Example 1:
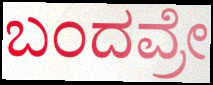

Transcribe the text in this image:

ಬಂದವ್ರೇ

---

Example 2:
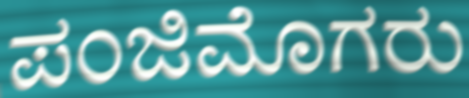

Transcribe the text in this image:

ಪಂಜಿಮೊಗರು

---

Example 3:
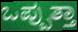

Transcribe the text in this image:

ಒಪ್ಪುತ್ತಾ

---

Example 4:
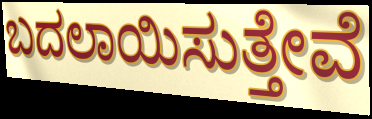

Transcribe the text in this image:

ಬದಲಾಯಿಸುತ್ತೇವೆ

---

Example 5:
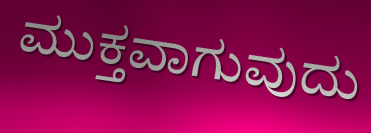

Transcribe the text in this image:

ಮುಕ್ತವಾಗುವುದು